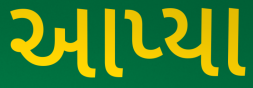
આપ્યા